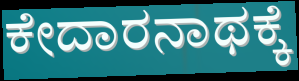
ಕೇದಾರನಾಥಕ್ಕೆ